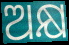
ଅକ୍ଷ